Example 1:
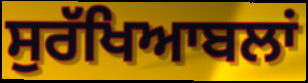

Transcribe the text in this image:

ਸੁਰੱਖਿਆਬਲਾਂ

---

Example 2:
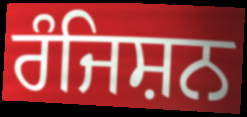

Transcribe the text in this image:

ਰੰਜਿਸ਼ਨ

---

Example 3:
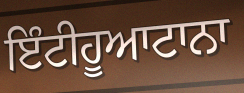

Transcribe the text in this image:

ਇੰਟੀਹੂਆਟਾਨਾ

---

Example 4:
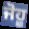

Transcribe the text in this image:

ਜੋਹੂ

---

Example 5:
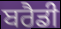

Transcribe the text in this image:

ਬਰੈਡੀ